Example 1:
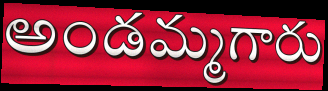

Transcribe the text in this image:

అండమ్మగారు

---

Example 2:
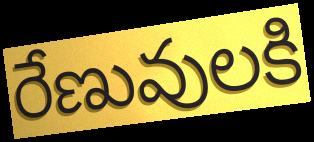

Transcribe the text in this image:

రేణువులకి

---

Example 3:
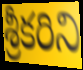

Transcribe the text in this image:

శ్రీకరిని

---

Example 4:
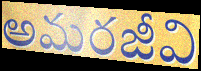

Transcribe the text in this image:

అమరజీవి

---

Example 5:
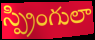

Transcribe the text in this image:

స్ప్రింగులా